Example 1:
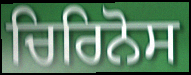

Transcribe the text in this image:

ਚਿਰਿਨੋਸ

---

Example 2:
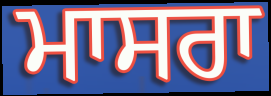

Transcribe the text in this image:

ਮਾਸਰਾ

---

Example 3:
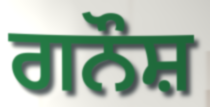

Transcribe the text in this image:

ਗਨੌਸ਼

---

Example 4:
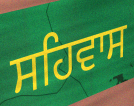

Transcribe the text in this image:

ਸਹਿਵਾਸ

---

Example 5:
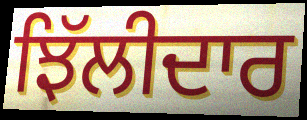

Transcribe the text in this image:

ਝਿੱਲੀਦਾਰ